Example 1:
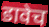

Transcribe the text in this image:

डावेच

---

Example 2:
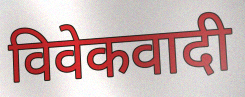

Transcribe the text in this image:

विवेकवादी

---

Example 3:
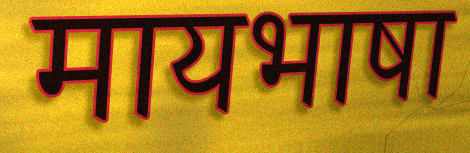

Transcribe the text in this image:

मायभाषा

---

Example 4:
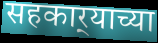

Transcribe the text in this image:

सहकार्याच्या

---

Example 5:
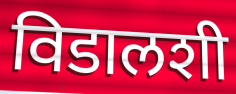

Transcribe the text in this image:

विडालशी